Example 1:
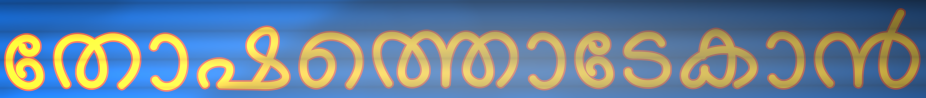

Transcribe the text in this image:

തോഷത്തൊടേകാൻ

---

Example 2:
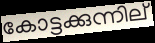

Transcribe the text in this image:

കോട്ടക്കുന്നില്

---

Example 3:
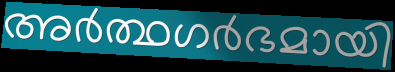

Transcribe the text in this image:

അർത്ഥഗർഭമായി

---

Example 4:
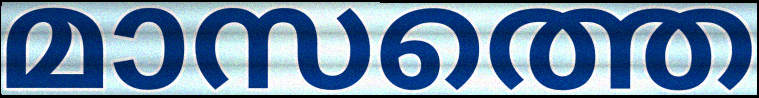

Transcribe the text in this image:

മാസത്തെ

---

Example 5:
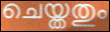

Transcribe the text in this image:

ചെയ്തതും